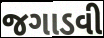
જગાડવી